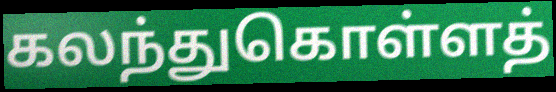
கலந்துகொள்ளத்